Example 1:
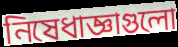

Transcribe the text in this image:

নিষেধাজ্ঞাগুলো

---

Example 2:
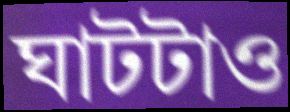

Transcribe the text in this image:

ঘাটটাও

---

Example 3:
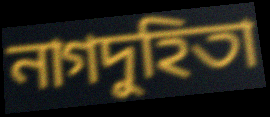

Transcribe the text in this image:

নাগদুহিতা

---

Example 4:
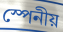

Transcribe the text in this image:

স্পেনীয়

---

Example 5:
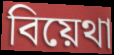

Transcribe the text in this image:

বিয়েথা